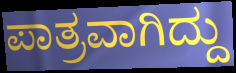
ಪಾತ್ರವಾಗಿದ್ದು